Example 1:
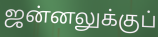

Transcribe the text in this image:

ஜன்னலுக்குப்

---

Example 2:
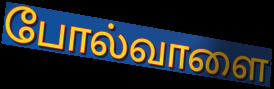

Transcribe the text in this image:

போல்வாளை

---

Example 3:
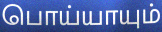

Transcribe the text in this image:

பொய்யாயும்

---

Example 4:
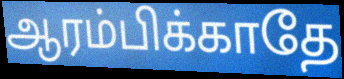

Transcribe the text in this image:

ஆரம்பிக்காதே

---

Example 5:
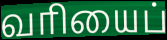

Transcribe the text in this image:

வரியைப்